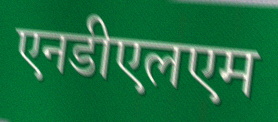
एनडीएलएम